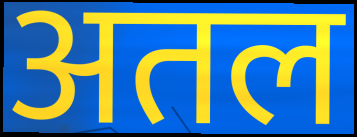
अतल